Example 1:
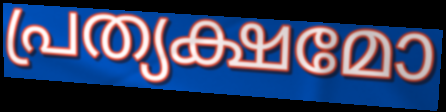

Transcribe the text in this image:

പ്രത്യക്ഷമോ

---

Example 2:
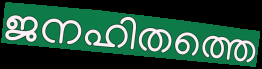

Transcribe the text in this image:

ജനഹിതത്തെ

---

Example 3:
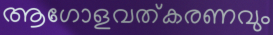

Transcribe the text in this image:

ആഗോളവത്കരണവും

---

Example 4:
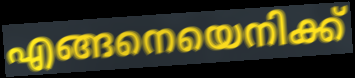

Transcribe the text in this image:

എങ്ങനെയെനിക്ക്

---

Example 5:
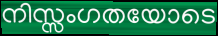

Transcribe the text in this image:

നിസ്സംഗതയോടെ